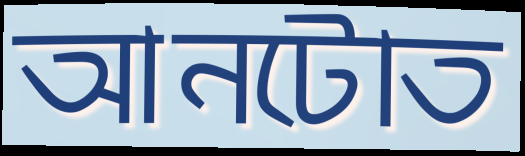
আনটোত